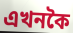
এখনকৈ